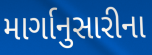
માર્ગાનુસારીના